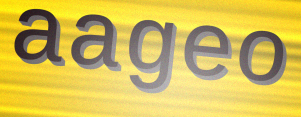
aageo